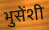
भुसेंशी